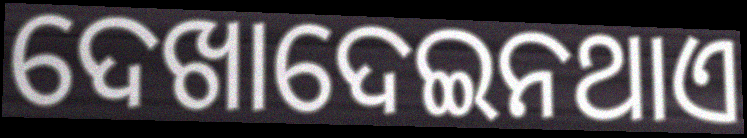
ଦେଖାଦେଇନଥାଏ